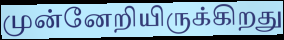
முன்னேறியிருக்கிறது